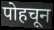
पोहचून